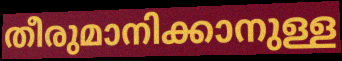
തീരുമാനിക്കാനുള്ള